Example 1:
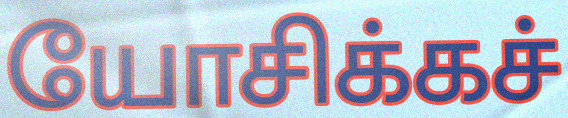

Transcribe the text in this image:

யோசிக்கச்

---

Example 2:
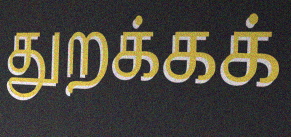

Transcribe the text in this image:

துறக்கக்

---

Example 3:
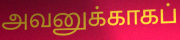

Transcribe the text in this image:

அவனுக்காகப்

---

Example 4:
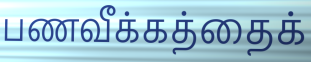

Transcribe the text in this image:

பணவீக்கத்தைக்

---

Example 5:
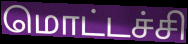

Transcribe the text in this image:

மொட்டச்சி